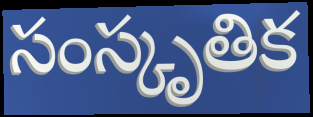
సంస్కృతిక